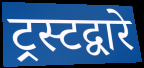
ट्रस्टद्वारे